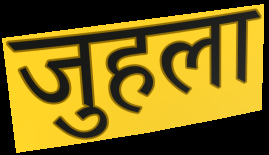
जुहला